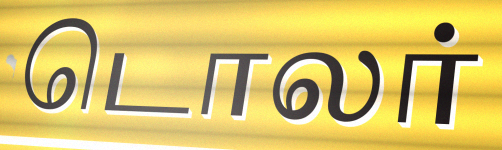
டொலர்